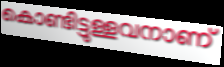
കൊണ്ടിട്ടുള്ളവനാണ്